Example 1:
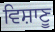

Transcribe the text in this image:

ਵਿਸ਼ਾਣੂ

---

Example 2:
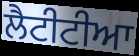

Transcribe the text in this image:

ਲੈਟੀਟੀਆ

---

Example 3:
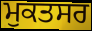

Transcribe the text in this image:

ਮੁਕਤਸਰ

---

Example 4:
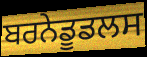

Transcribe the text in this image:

ਬਰਨੇਡੂਡਲਸ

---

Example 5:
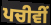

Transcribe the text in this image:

ਪਚੀਵੀਂ